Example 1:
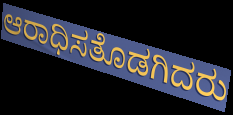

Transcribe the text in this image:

ಆರಾಧಿಸತೊಡಗಿದರು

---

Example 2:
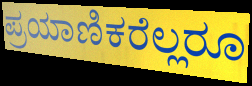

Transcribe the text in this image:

ಪ್ರಯಾಣಿಕರೆಲ್ಲರೂ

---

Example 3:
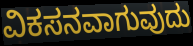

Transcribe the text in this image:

ವಿಕಸನವಾಗುವುದು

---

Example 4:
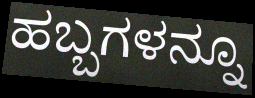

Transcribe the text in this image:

ಹಬ್ಬಗಳನ್ನೂ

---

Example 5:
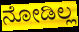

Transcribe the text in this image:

ನೋಡಿಲ್ಲ